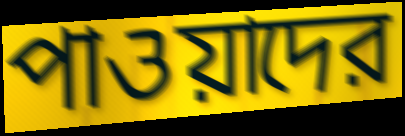
পাওয়াদের